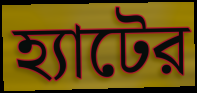
হ্যাটের